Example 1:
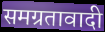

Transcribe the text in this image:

समग्रतावादी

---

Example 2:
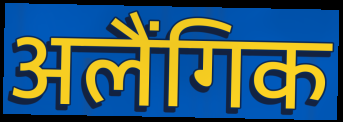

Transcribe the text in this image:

अलैंगिक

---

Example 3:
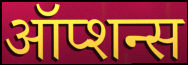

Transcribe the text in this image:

ऑप्शन्स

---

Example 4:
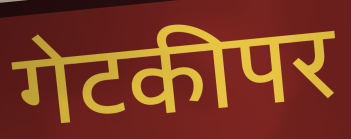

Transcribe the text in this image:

गेटकीपर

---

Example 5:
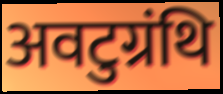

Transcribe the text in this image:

अवटुग्रंथि